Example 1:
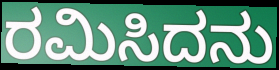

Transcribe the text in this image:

ರಮಿಸಿದನು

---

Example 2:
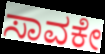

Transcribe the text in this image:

ಸಾವಕೇ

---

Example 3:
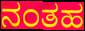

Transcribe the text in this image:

ನಂತಹ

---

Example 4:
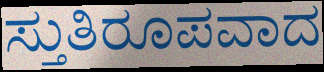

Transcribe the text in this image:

ಸ್ತುತಿರೂಪವಾದ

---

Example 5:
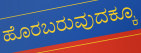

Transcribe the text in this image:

ಹೊರಬರುವುದಕ್ಕೂ